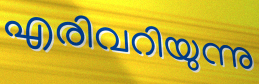
എരിവറിയുന്നു